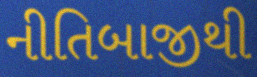
નીતિબાજીથી